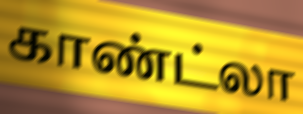
காண்ட்லா